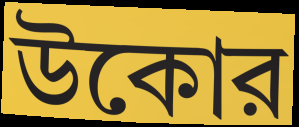
উকোর